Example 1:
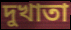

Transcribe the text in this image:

দুখাতা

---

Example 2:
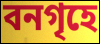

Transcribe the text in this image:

বনগৃহে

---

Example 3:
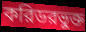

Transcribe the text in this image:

করিডরভুক্ত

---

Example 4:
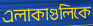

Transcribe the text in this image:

এলাকাগুলিকে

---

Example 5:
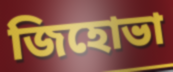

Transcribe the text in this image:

জিহোভা